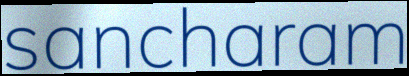
sancharam